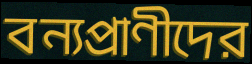
বন্যপ্রাণীদের